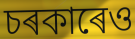
চৰকাৰেও